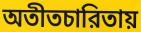
অতীতচারিতায়